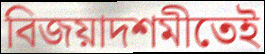
বিজয়াদশমীতেই